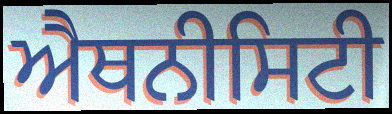
ਐਥਨੀਸਿਟੀ